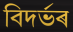
বিদৰ্ভৰ